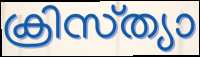
ക്രിസ്‌ത്യാ